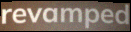
revamped